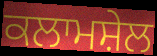
ਕਲਾਮਸ਼ੇਲ